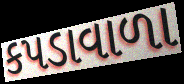
કપડાવાળા